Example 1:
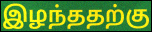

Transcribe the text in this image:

இழந்ததற்கு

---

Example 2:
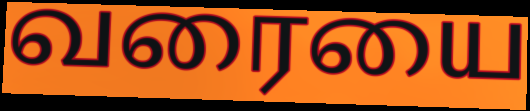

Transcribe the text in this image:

வரையை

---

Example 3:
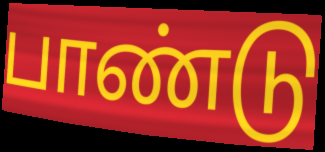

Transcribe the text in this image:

பாண்டு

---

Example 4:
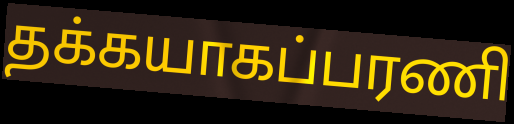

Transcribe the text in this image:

தக்கயாகப்பரணி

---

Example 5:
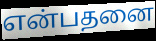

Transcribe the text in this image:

என்பதனை